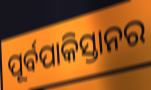
ପୂର୍ବପାକିସ୍ତାନର